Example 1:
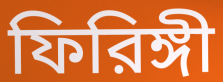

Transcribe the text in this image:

ফিরিঙ্গী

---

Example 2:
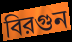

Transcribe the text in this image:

বিরগুন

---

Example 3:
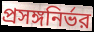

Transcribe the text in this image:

প্রসঙ্গনির্ভর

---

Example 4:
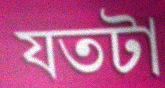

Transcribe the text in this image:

যতটা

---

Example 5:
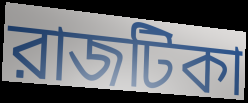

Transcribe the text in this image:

রাজটিকা